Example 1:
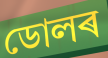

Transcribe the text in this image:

ডোলৰ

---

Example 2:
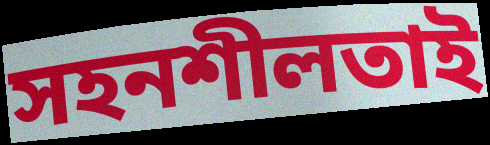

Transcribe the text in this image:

সহনশীলতাই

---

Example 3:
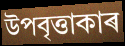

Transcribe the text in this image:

উপবৃত্তাকাৰ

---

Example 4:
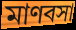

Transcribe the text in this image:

মাণবসা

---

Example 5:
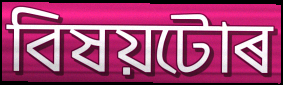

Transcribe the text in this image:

বিষয়টোৰ